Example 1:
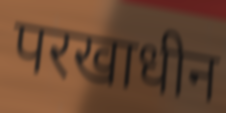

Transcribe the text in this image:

परखाधीन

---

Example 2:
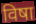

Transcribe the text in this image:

विषा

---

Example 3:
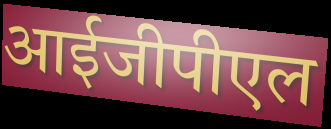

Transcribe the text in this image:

आईजीपीएल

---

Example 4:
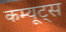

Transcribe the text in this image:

कम्यूट्स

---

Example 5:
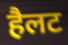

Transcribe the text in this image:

हैलट